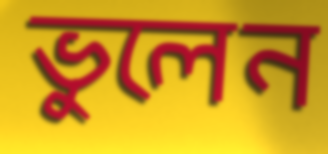
ভুলেন